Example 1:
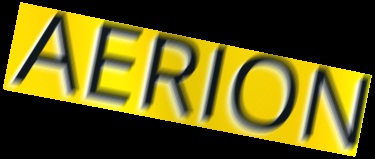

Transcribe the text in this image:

AERION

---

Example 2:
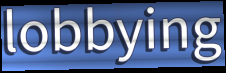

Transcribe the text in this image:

lobbying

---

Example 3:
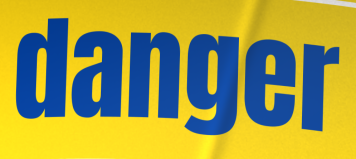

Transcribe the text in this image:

danger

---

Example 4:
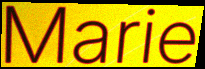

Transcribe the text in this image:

Marie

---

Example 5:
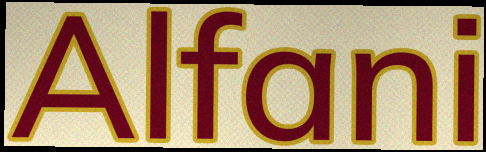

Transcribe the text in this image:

Alfani